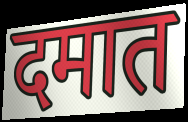
दमात